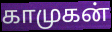
காமுகன்